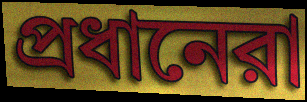
প্রধানেরা